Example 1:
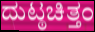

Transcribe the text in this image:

ದುಟ್ಠಚಿತ್ತಂ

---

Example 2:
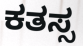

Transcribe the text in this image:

ಕತಸ್ಸ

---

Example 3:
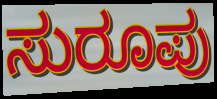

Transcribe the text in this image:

ಸುರೂಪು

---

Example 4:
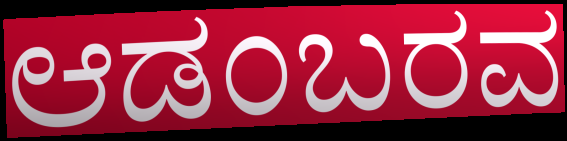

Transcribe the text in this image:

ಆಡಂಬರವ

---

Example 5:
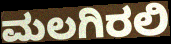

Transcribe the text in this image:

ಮಲಗಿರಲಿ